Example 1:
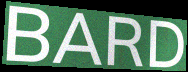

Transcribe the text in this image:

BARD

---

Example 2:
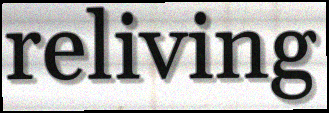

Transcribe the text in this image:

reliving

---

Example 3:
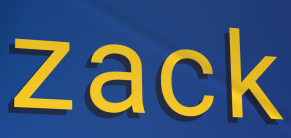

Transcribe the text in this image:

zack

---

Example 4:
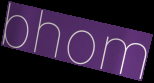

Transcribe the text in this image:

bhom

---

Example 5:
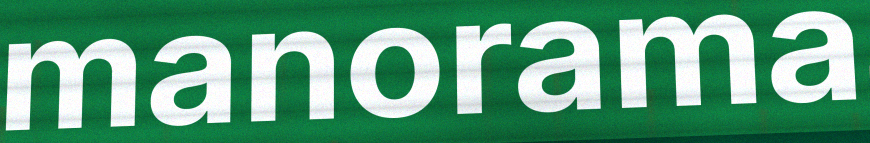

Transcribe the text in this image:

manorama